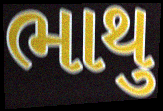
ભાથુ